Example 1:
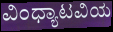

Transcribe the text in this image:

ವಿಂಧ್ಯಾಟವಿಯ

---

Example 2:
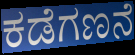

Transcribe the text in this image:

ಕಡೆಗಣನೆ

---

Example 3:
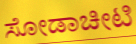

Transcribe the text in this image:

ಸೋಡಾಚೀಟಿ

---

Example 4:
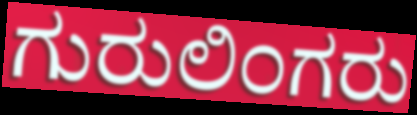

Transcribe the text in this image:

ಗುರುಲಿಂಗರು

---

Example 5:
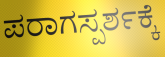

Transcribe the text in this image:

ಪರಾಗಸ್ಪರ್ಶಕ್ಕೆ